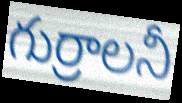
గుర్రాలనీ